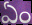
ఏం